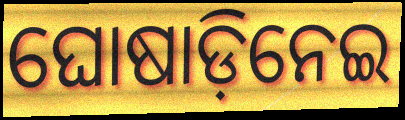
ଘୋଷାଡ଼ିନେଇ